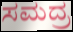
ಸಮದ್ರ